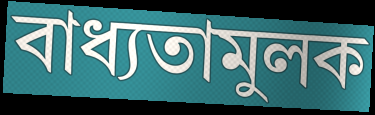
বাধ্যতামুলক